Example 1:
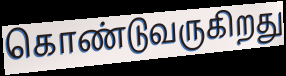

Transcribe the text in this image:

கொண்டுவருகிறது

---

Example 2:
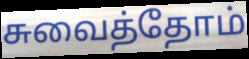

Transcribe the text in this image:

சுவைத்தோம்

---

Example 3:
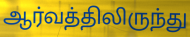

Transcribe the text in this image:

ஆர்வத்திலிருந்து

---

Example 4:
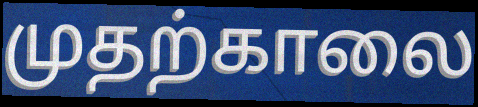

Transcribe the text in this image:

முதற்காலை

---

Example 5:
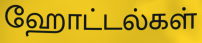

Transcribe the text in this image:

ஹோட்டல்கள்